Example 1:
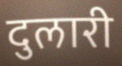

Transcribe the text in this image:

दुलारी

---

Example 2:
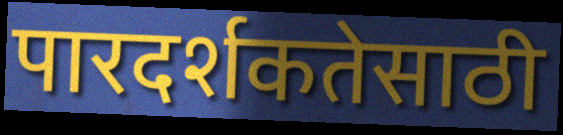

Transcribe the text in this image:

पारदर्शकतेसाठी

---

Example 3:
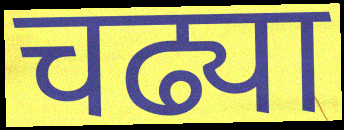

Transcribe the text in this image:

चढ्या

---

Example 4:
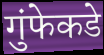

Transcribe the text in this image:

गुंफेकडे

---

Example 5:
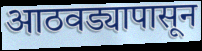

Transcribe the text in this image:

आठवड्यापासून